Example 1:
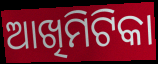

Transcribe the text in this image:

ଆଖିମିଟିକା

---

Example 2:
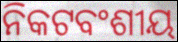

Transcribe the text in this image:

ନିକଟବଂଶୀୟ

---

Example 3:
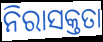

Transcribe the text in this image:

ନିରାସକ୍ତତା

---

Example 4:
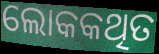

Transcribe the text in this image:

ଲୋକକଥିତ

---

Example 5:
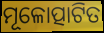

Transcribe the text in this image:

ମୂଳୋତ୍ପାଟିତ